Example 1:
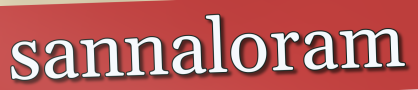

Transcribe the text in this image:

sannaloram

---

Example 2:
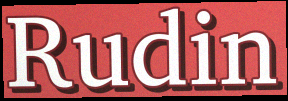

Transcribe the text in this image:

Rudin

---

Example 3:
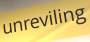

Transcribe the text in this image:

unreviling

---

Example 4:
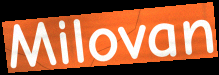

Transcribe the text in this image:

Milovan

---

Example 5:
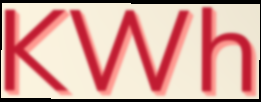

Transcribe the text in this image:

KWh